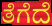
ತೆಗೆದೆ